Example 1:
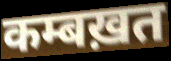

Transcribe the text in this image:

कम्बख़त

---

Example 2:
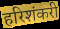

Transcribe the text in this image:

हरिशंकरी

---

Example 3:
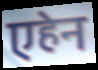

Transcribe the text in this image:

एहेन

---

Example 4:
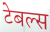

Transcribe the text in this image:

टेबल्स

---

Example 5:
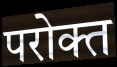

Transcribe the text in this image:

परोक्त